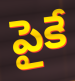
పైకే